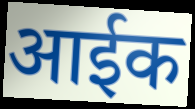
आईक